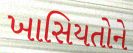
ખાસિયતોને